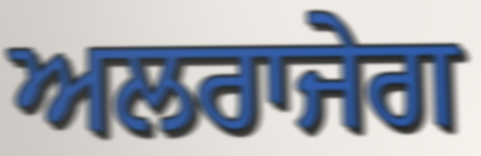
ਅਲਰਾਜੇਗ